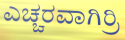
ಎಚ್ಚರವಾಗಿರ್ರಿ